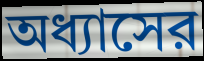
অধ্যাসের